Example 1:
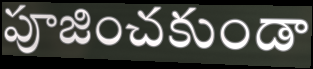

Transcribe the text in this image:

పూజించకుండా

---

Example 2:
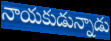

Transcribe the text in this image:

నాయకుడున్నాడు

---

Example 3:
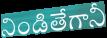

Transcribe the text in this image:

నిండితేగానీ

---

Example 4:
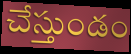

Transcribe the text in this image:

చేస్తుండం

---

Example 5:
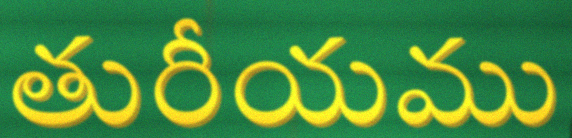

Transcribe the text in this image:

తురీయము